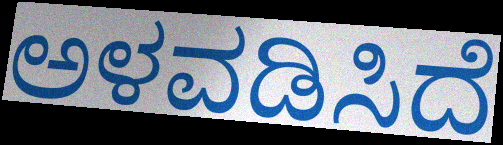
ಅಳವಡಿಸಿದೆ